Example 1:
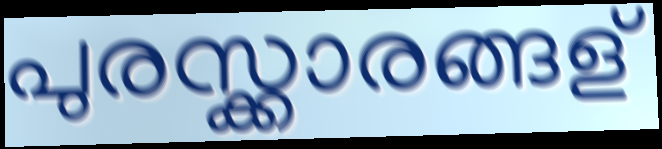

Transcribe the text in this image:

പുരസ്ക്കാരങ്ങള്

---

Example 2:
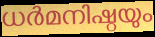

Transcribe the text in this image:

ധർമനിഷ്ഠയും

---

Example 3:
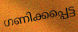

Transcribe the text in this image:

ഗണിക്കപ്പെട്ട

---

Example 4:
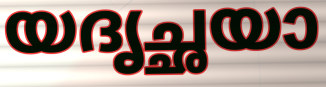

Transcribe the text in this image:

യദൃച്ഛയാ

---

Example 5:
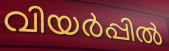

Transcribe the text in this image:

വിയർപ്പിൽ